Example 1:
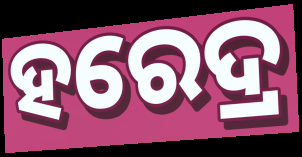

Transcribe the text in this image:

ହରେଦ୍ର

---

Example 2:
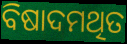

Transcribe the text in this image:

ବିଷାଦମଥିତ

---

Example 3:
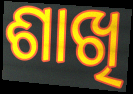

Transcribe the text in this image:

ଶାଖି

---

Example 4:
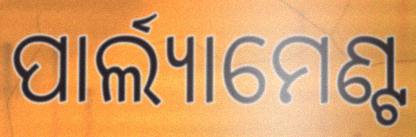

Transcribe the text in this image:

ପାର୍ଲ୍ୟାମେଣ୍ଟ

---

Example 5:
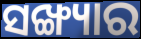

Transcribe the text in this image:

ସଙ୍ଖ୍ୟାର